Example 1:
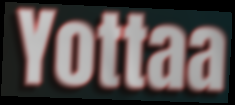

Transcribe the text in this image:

Yottaa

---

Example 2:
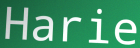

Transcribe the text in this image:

Harie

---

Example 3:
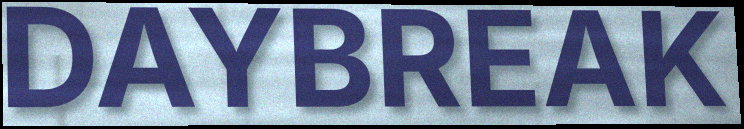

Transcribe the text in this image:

DAYBREAK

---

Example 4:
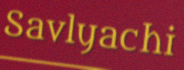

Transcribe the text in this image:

Savlyachi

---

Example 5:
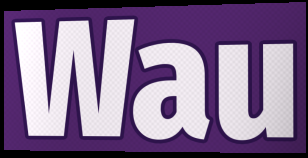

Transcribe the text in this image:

Wau